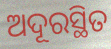
ଅଦୂରସ୍ଥିତ